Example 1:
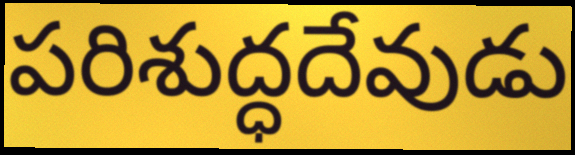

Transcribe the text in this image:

పరిశుద్ధదేవుడు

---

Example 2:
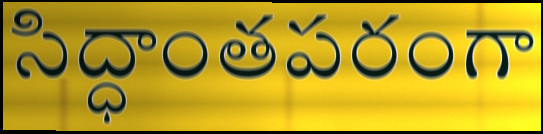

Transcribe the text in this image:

సిద్ధాంతపరంగా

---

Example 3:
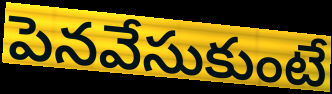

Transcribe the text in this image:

పెనవేసుకుంటే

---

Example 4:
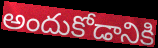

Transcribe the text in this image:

అందుకోడానికి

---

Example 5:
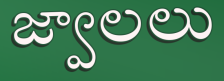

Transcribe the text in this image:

జ్వాలలు